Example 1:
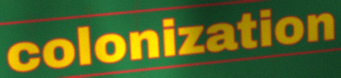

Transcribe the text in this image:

colonization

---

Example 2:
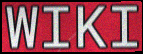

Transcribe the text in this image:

WIKI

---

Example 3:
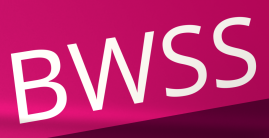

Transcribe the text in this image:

BWSS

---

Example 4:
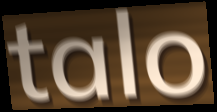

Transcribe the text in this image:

talo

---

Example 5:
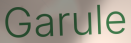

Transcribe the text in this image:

Garule